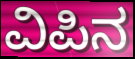
ವಿಪಿನ